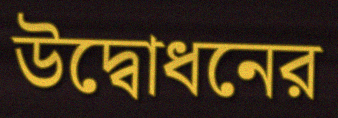
উদ্বোধনের